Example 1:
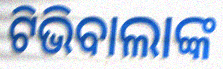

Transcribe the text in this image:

ଟିଭିବାଲାଙ୍କ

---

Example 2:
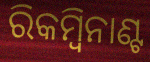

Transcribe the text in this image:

ରିକମ୍ବିନାଣ୍ଟ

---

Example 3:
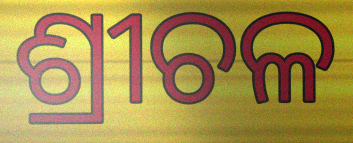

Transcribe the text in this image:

ଶ୍ରୀଚଳ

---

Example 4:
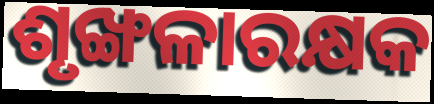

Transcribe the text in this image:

ଶୃଙ୍ଖଳାରକ୍ଷକ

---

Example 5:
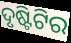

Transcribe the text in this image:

ଦୃଷ୍ଟିଟିର